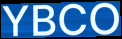
YBCO